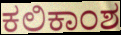
ಕಲಿಕಾಂಶ